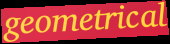
geometrical